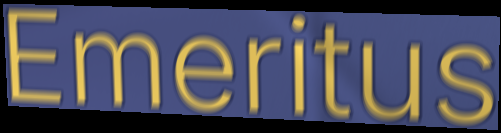
Emeritus